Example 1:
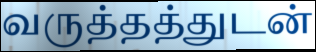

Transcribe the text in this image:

வருத்தத்துடன்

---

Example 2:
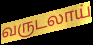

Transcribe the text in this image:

வருடலாய்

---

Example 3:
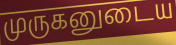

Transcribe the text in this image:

முருகனுடைய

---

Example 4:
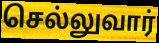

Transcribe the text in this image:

செல்லுவார்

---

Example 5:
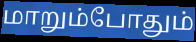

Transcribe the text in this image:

மாறும்போதும்